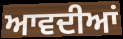
ਆਵਦੀਆਂ